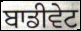
ਬਾਡੀਵੇਟ